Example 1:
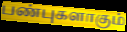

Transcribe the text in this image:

பண்புகளாகும்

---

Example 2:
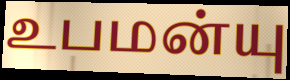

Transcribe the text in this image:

உபமன்யு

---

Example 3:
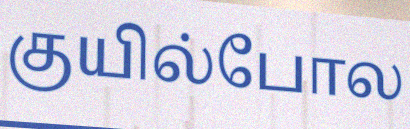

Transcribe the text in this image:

குயில்போல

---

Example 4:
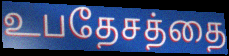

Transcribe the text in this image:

உபதேசத்தை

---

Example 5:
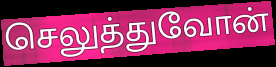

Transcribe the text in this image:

செலுத்துவோன்